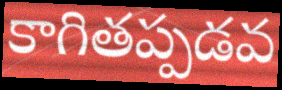
కాగితప్పడవ